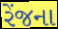
રેંજના